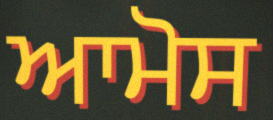
ਆਮੋਸ